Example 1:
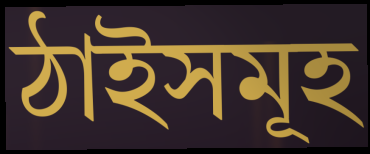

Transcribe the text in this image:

ঠাইসমূহ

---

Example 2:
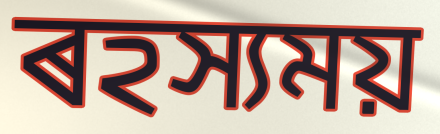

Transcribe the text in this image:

ৰহস্যময়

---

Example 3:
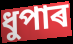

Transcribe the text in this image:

ধুপাৰ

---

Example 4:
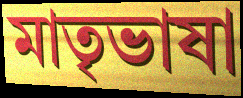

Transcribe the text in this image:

মাতৃভাষা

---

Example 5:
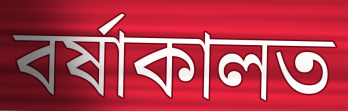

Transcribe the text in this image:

বৰ্ষাকালত